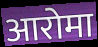
आरोमा